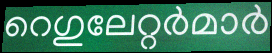
റെഗുലേറ്റർമാർ